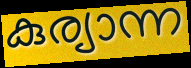
കുര്യാന്ന